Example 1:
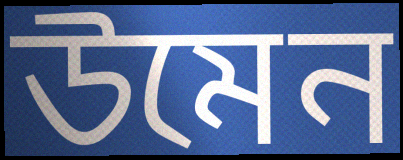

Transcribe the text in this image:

উমেন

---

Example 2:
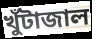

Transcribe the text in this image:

খুঁটাজাল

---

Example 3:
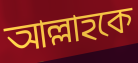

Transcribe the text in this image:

আল্লাহকে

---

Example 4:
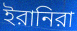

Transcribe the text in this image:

ইরানিরা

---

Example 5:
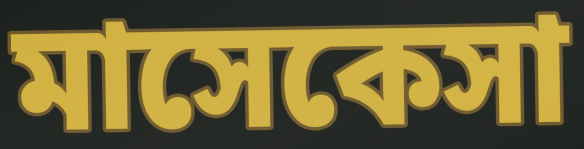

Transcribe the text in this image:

মাসেকেসা